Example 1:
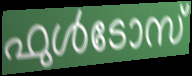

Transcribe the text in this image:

ഫുൾടോസ്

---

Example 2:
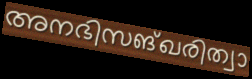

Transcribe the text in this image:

അനഭിസങ്ഖരിത്വാ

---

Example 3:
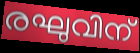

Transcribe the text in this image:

രഘുവിന്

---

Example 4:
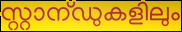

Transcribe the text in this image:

സ്റ്റാന്ഡുകളിലും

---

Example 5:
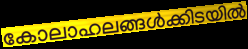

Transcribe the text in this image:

കോലാഹലങ്ങൾക്കിടയിൽ